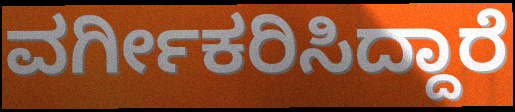
ವರ್ಗೀಕರಿಸಿದ್ದಾರೆ